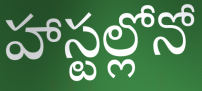
హాస్టల్లోనో